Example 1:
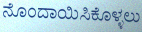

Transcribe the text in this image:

ನೊಂದಾಯಿಸಿಕೊಳ್ಳಲು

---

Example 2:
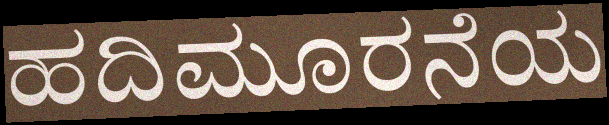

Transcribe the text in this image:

ಹದಿಮೂರನೆಯ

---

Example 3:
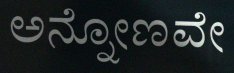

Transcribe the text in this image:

ಅನ್ನೋಣವೇ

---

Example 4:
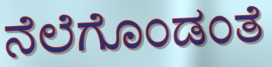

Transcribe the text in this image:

ನೆಲೆಗೊಂಡಂತೆ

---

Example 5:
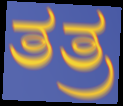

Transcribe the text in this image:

ತತ್ರ